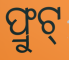
ଫ୍ରୁଟ୍